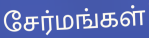
சேர்மங்கள்